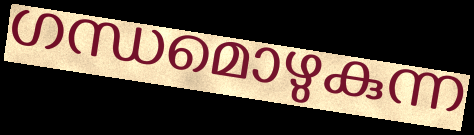
ഗന്ധമൊഴുകുന്ന